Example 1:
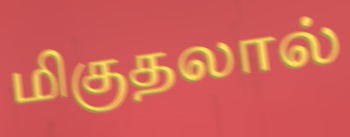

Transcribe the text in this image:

மிகுதலால்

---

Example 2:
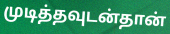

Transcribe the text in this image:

முடித்தவுடன்தான்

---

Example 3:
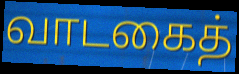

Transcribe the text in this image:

வாடகைத்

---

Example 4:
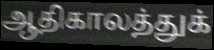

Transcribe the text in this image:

ஆதிகாலத்துக்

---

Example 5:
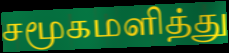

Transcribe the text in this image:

சமூகமளித்து